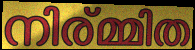
നിര്മ്മിത